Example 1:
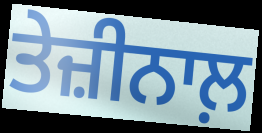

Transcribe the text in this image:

ਤੇਜ਼ੀਨਾਲ਼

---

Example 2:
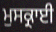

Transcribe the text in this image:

ਮੁਸਕ੍ਰਾਈ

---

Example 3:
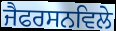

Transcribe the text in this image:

ਜੈਫਰਸਨਵਿਲੇ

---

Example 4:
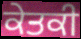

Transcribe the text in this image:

ਕੇਤਕੀ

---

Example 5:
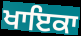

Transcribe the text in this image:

ਖਾਇਕਾ